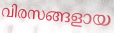
വിരസങ്ങളായ